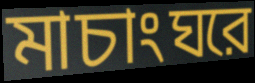
মাচাংঘরে